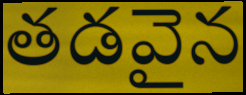
తడవైన